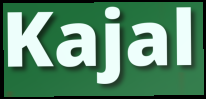
Kajal